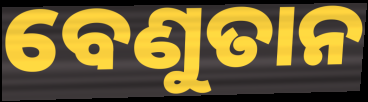
ବେଣୁତାନ